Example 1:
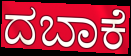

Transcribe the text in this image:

ದಬಾಕೆ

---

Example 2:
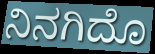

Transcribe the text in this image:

ನಿನಗಿದೊ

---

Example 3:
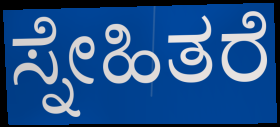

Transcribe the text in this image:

ಸ್ನೇಹಿತರೆ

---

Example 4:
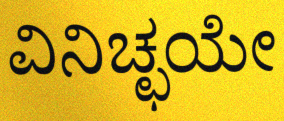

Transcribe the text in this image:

ವಿನಿಚ್ಛಯೇ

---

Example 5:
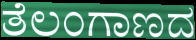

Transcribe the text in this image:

ತೆಲಂಗಾಣದ